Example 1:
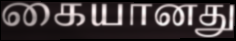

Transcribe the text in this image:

கையானது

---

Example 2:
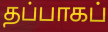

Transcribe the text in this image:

தப்பாகப்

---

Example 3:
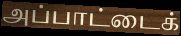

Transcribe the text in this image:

அப்பாட்டைக்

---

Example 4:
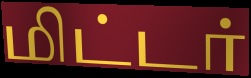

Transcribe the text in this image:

மிட்டர்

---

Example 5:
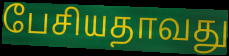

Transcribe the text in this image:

பேசியதாவது